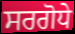
ਸਰਗੋਧੇ